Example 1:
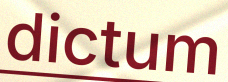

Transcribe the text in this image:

dictum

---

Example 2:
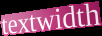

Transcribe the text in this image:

textwidth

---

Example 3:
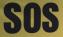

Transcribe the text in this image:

sos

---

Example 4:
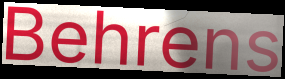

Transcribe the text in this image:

Behrens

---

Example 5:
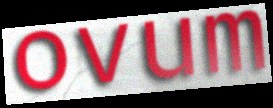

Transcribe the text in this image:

ovum